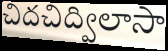
చిదచిద్విలాసా